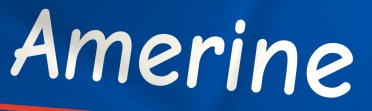
Amerine